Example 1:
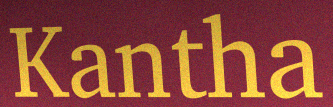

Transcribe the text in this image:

Kantha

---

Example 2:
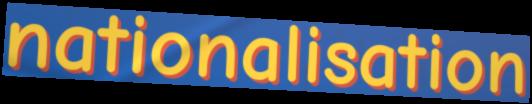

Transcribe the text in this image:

nationalisation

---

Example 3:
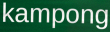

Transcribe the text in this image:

kampong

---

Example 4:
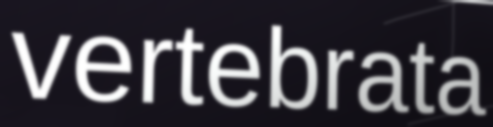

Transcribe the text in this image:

vertebrata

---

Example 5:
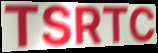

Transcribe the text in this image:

TSRTC